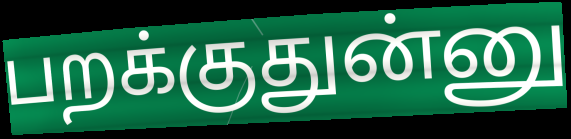
பறக்குதுன்னு